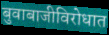
बुवाबाजीविरोधात